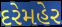
દરેમહેર